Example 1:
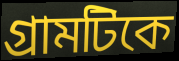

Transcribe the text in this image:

গ্রামটিকে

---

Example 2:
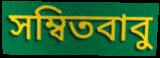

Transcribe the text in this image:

সম্বিতবাবু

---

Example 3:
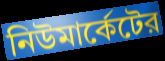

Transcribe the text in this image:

নিউমার্কেটের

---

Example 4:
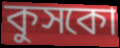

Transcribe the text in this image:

কুসকো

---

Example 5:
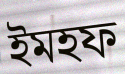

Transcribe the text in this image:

ইমহফ